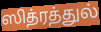
ஸித்ரத்துல்